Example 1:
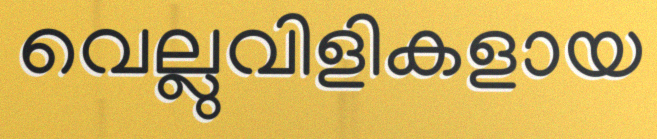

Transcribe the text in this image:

വെല്ലുവിളികളായ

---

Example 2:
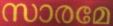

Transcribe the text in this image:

സാരമേ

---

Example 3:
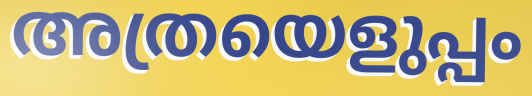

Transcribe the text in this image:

അത്രയെളുപ്പം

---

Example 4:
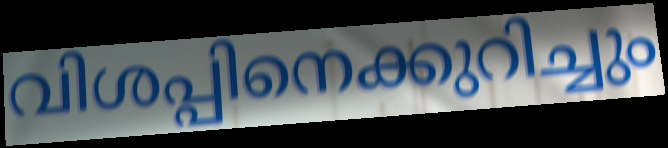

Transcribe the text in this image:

വിശപ്പിനെക്കുറിച്ചും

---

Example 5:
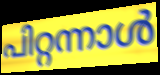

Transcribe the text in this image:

പിറ്റന്നാൾ